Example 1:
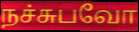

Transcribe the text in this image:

நச்சுபவோ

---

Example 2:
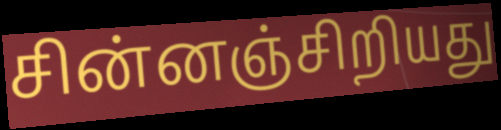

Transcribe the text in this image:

சின்னஞ்சிறியது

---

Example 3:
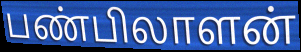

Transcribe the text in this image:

பண்பிலாளன்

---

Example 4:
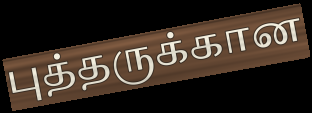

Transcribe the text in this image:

புத்தருக்கான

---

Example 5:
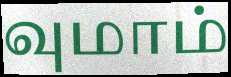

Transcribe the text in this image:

வுமாம்